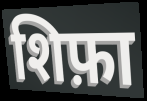
शिफ़ा